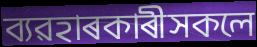
ব্যৱহাৰকাৰীসকলে